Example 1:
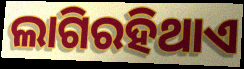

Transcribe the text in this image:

ଲାଗିରହିଥାଏ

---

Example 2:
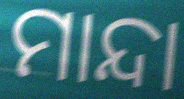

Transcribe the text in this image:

ମାନ୍ଦା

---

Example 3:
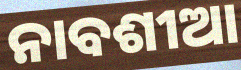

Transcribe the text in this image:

ନାବଶୀଆ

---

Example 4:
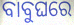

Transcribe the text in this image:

ବାବୁଘରେ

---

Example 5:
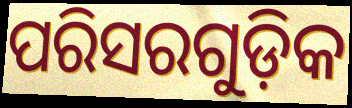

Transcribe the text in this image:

ପରିସରଗୁଡ଼ିକ